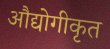
औद्योगीकृत